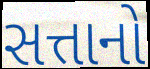
સત્તાનો